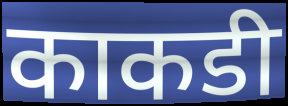
काकडी